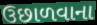
ઉછાળવાના